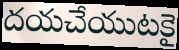
దయచేయుటకై